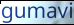
gumavi